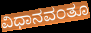
ವಿಧಾನವಂತೂ